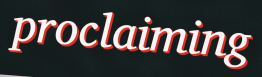
proclaiming